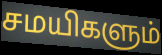
சமயிகளும்